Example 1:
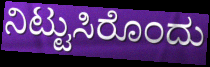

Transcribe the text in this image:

ನಿಟ್ಟುಸಿರೊಂದು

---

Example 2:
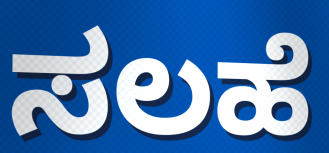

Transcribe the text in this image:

ಸಲಹೆ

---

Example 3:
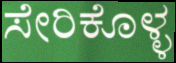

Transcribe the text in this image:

ಸೇರಿಕೊಳ್ಳ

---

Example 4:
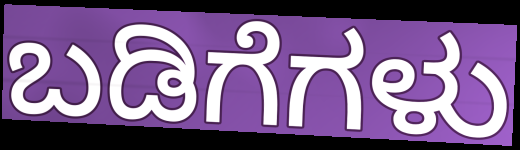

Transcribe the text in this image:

ಬಡಿಗೆಗಳು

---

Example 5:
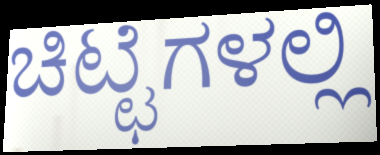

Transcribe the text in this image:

ಚಿಟ್ಟೆಗಳಲ್ಲಿ